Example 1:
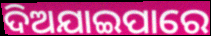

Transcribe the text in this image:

ଦିଅଯାଇପାରେ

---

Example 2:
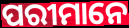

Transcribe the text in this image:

ପରୀମାନେ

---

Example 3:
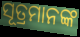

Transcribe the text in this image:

ସୂତ୍ରମାନଙ୍କ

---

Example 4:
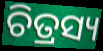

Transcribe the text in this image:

ଚିତ୍ରସ୍ୟ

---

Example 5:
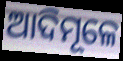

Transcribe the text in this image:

ଆଦିମୂଳେ